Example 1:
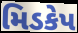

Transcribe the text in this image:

મિડકેપ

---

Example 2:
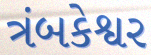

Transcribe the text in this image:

ત્રંબકેશ્વર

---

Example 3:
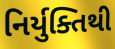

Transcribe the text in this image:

નિર્યુક્તિથી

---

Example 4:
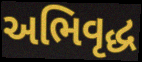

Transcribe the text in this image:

અભિવૃદ્ધ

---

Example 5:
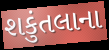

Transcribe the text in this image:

શકુંતલાના